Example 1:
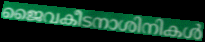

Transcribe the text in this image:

ജൈവകീടനാശിനികൾ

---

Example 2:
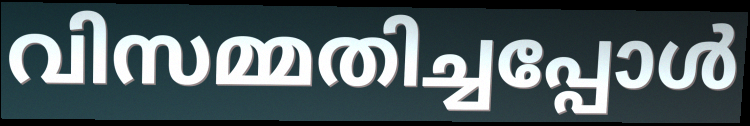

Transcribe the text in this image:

വിസമ്മതിച്ചപ്പോൾ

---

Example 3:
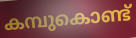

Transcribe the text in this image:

കമ്പുകൊണ്ട്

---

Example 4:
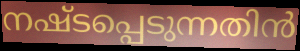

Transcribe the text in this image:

നഷ്ടപ്പെടുന്നതിൻ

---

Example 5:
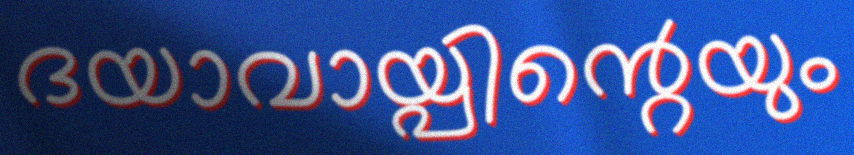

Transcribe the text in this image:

ദയാവായ്പിന്റെയും